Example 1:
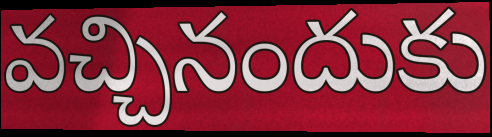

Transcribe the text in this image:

వచ్చినందుకు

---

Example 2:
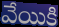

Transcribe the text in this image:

వేయికి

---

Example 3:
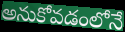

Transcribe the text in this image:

అనుకోవడంలోనే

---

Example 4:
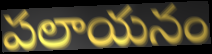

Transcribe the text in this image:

పలాయనం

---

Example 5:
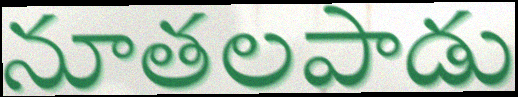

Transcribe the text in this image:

నూతలపాడు